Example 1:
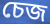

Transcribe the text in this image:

চেজ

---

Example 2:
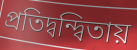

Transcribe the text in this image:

প্রতিদ্বন্দ্বিতায়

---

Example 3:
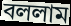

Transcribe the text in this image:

বললাম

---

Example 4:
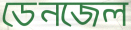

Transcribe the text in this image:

ডেনজেল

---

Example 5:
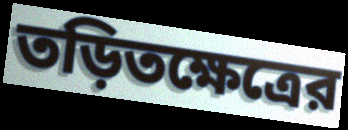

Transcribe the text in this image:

তড়িতক্ষেত্রের